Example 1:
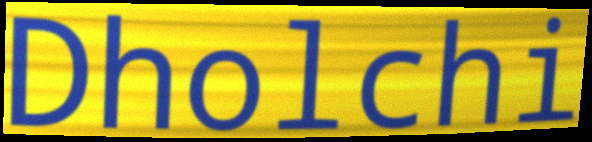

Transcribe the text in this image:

Dholchi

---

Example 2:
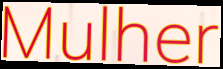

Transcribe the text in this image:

Mulher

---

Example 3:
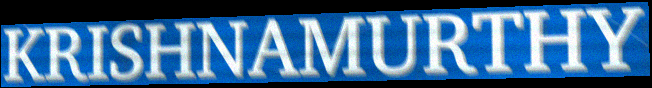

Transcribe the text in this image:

KRISHNAMURTHY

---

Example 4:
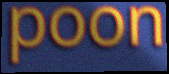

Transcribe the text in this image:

poon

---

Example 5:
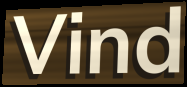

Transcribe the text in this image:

Vind